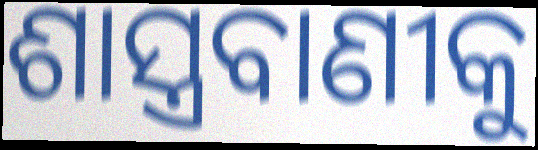
ଶାସ୍ତ୍ରବାଣୀକୁ